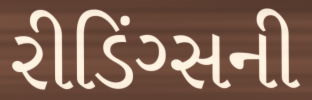
રીડિંગ્સની